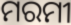
ମରମୀ